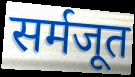
सर्मजूत